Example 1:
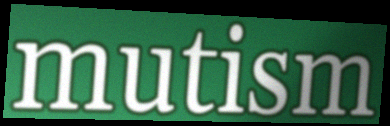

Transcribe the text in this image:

mutism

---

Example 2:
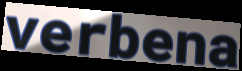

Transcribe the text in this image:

verbena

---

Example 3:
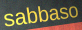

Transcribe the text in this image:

sabbaso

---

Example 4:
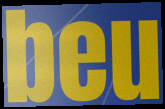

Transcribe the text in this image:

beu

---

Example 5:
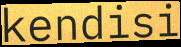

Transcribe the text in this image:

kendisi